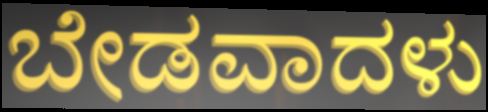
ಬೇಡವಾದಳು